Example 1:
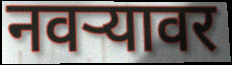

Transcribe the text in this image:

नवर्‍यावर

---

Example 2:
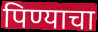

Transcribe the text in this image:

पिण्याचा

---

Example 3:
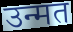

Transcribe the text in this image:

उन्मत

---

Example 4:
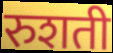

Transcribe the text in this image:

रुशती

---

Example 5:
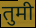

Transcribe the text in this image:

तुमी